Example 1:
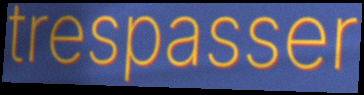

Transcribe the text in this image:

trespasser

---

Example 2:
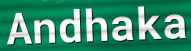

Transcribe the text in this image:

Andhaka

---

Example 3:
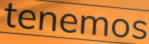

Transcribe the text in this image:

tenemos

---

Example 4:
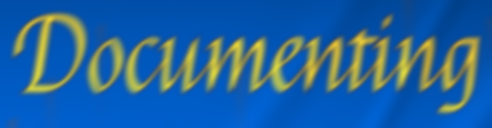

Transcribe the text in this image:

Documenting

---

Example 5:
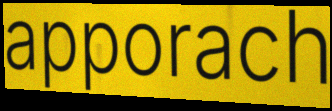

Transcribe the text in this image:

apporach